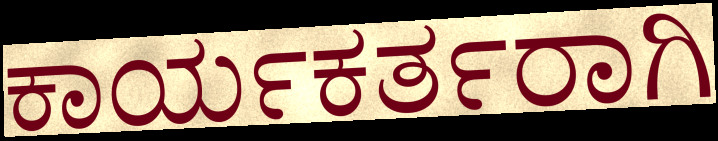
ಕಾರ್ಯಕರ್ತರಾಗಿ